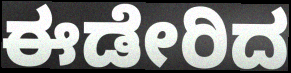
ಈಡೇರಿದ